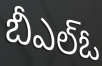
బీఎల్ఓ